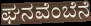
ಘನವೆಂಬೆನೆ